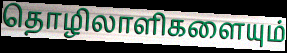
தொழிலாளிகளையும்